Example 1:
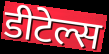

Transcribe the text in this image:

डीटेल्‍स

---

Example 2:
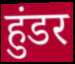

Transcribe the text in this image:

हुंडर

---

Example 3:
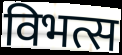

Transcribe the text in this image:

विभत्स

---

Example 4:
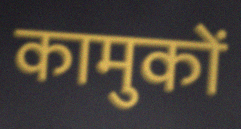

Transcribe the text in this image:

कामुकों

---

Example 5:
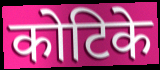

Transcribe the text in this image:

कोटिके